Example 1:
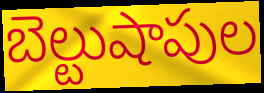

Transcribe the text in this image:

బెల్టుషాపుల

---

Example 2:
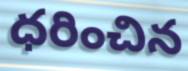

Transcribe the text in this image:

ధరించిన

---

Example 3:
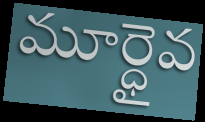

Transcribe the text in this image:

మూర్ధైవ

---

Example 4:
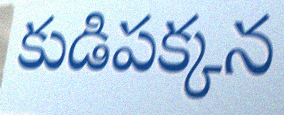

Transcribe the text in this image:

కుడిపక్కన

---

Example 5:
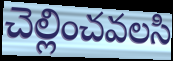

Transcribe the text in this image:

చెల్లించవలసి